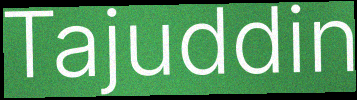
Tajuddin